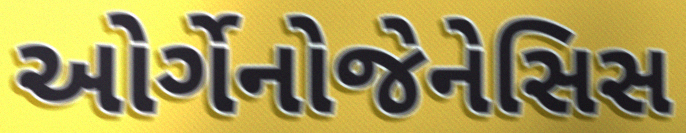
ઓર્ગેનોજેનેસિસ